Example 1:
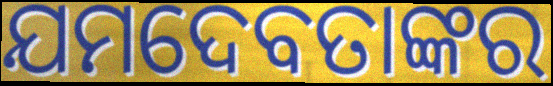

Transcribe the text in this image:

ଯମଦେବତାଙ୍କର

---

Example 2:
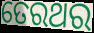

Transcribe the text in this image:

ତେରଥର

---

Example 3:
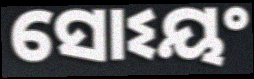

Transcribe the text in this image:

ସୋଽୟଂ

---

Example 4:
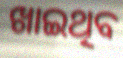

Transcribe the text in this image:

ଖାଇଥିବ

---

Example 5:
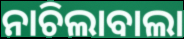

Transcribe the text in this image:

ନାଚିଲାବାଲା